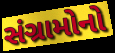
સંગ્રામોનો